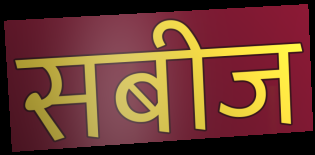
सबीज